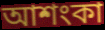
আশংকা